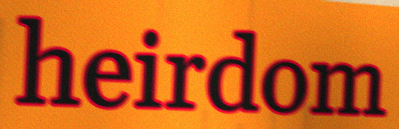
heirdom